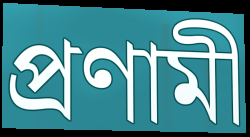
প্রণামী